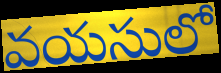
వయసులో